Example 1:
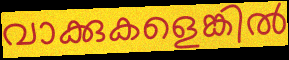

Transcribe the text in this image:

വാക്കുകളെങ്കിൽ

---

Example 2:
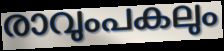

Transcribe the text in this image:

രാവുംപകലും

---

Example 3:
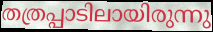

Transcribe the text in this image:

തത്രപ്പാടിലായിരുന്നു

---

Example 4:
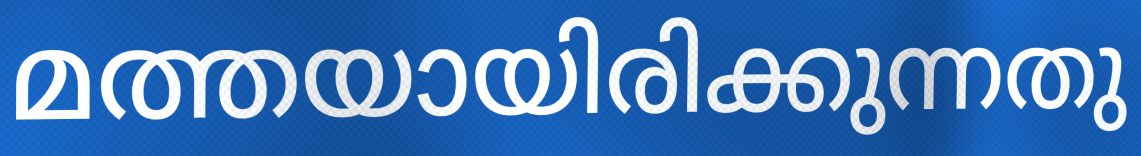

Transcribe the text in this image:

മത്തയായിരിക്കുന്നതു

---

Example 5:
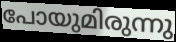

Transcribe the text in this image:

പോയുമിരുന്നു